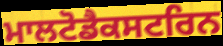
ਮਾਲਟੋਡੈਕਸਟਰਿਨ